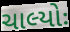
ચાલ્યોઃ